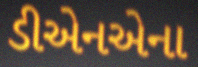
ડીએનએના